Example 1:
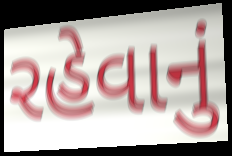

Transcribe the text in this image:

રહેવાનું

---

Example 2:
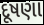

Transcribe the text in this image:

દૂષણા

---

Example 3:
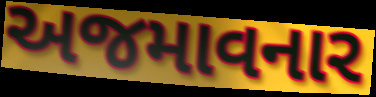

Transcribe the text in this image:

અજમાવનાર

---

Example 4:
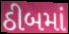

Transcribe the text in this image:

ઠીબમાં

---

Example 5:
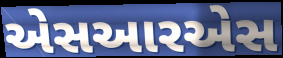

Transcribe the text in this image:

એસઆરએસ